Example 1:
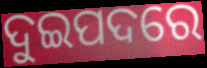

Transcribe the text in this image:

ଦୁଇପଦରେ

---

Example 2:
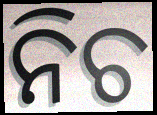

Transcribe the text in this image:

ନିଚ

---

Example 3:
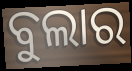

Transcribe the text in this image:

ବୁଲାର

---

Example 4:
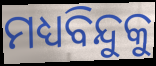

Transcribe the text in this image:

ମଧ୍ୟବିନ୍ଦୁକୁ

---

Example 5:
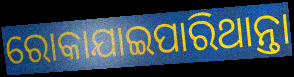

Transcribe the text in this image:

ରୋକାଯାଇପାରିଥାନ୍ତା